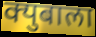
क्युबाला